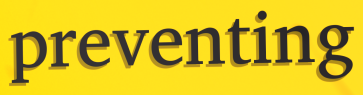
preventing